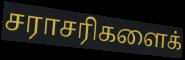
சராசரிகளைக்